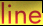
line